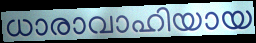
ധാരാവാഹിയായ